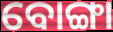
ବୋଙ୍ଗା